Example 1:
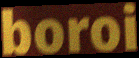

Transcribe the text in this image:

boroi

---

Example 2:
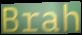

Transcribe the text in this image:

Brah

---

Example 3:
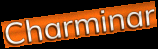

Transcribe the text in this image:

Charminar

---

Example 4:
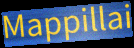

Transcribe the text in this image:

Mappillai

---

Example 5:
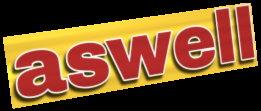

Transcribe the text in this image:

aswell